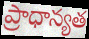
ప్రాధాన్యత